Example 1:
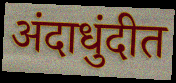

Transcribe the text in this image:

अंदाधुंदीत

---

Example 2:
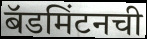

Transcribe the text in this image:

बॅडमिंटनची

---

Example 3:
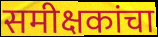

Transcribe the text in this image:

समीक्षकांचा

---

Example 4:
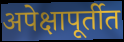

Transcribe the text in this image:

अपेक्षापूर्तीत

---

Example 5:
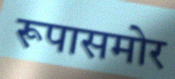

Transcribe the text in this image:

रूपासमोर